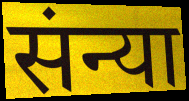
संन्या